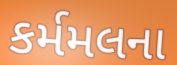
કર્મમલના